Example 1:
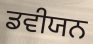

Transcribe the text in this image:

ਡਵੀਯਨ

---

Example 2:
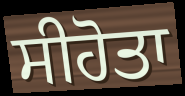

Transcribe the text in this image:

ਸੀਹੋਤਾ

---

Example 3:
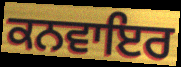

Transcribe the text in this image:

ਕਨਵਾਇਰ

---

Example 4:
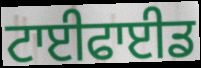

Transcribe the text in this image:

ਟਾਈਫਾਈਡ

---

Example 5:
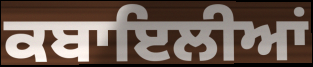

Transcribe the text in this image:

ਕਬਾਇਲੀਆਂ